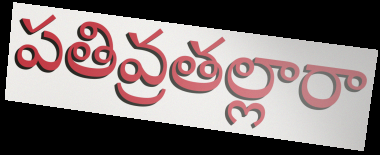
పతివ్రతల్లారా